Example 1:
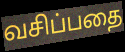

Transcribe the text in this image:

வசிப்பதை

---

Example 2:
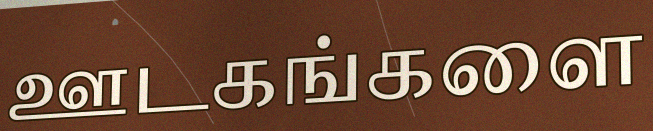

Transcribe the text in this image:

ஊடகங்களை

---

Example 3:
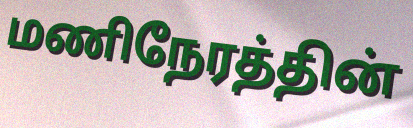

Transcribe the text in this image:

மணிநேரத்தின்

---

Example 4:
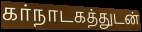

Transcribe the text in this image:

கர்நாடகத்துடன்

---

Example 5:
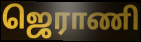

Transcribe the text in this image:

ஜெராணி